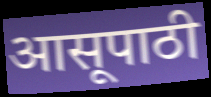
आसूपाठी